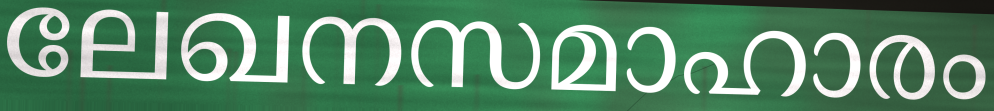
ലേഖനസമാഹാരം